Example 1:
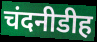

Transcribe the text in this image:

चंदनीडीह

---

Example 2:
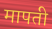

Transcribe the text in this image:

मापती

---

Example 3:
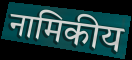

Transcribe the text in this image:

नामिकीय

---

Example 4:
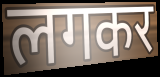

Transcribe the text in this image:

लगकर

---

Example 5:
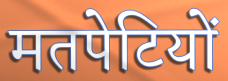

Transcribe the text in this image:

मतपेटियों